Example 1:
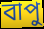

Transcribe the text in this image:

বাপু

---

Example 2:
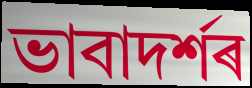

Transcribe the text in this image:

ভাবাদৰ্শৰ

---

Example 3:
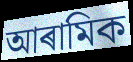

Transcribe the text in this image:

আৰামিক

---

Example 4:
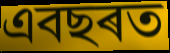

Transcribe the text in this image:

এবছৰত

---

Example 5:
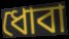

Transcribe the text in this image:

ধোবা